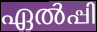
ഏൽപ്പി